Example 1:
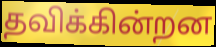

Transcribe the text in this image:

தவிக்கின்றன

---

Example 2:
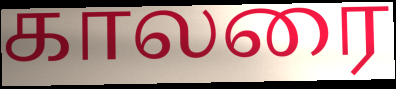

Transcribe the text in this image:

காலரை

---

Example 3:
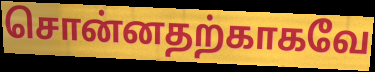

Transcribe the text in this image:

சொன்னதற்காகவே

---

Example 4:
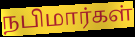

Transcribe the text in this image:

நபிமார்கள்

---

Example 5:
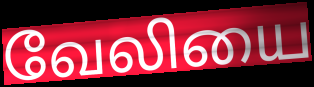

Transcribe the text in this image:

வேலியை